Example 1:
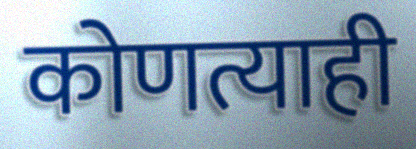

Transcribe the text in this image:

कोणत्याही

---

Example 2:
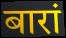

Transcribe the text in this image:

बारां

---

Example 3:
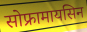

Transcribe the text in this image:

सोफ्रामायसिन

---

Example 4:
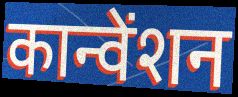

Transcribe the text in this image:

कान्वेंशन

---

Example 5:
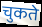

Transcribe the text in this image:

चुकते